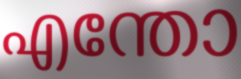
എന്തോ